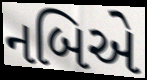
નબિએ